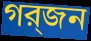
গর্‍জন